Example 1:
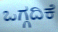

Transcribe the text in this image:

ಒಗ್ಗದಿಕೆ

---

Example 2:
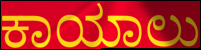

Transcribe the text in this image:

ಕಾಯಾಲು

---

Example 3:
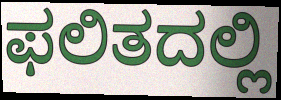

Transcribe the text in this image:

ಫಲಿತದಲ್ಲಿ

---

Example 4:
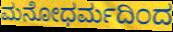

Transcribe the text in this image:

ಮನೋಧರ್ಮದಿಂದ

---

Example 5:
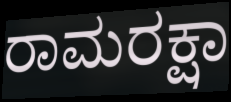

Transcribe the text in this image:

ರಾಮರಕ್ಷಾ